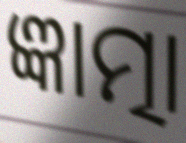
ଜ୍ଞାତ୍ମା